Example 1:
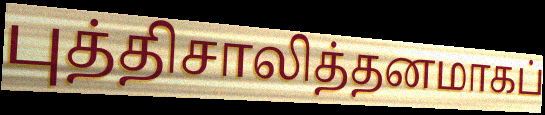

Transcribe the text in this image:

புத்திசாலித்தனமாகப்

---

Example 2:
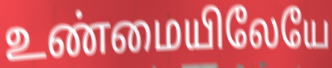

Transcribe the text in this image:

உண்மையிலேயே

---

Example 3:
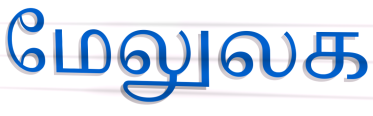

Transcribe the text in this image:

மேலுலக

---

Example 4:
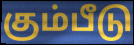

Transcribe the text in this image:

கும்பீடு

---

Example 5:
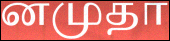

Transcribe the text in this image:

னமுதா